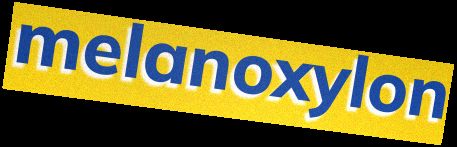
melanoxylon